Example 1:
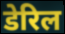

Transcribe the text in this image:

डेरिल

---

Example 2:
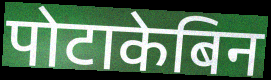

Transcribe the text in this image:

पोटाकेबिन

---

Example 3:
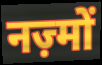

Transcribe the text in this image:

नज़्मों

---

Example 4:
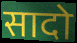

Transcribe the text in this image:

सादो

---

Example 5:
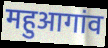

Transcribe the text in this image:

महुआगांव